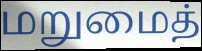
மறுமைத்